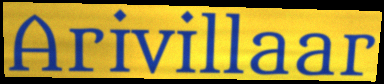
Arivillaar